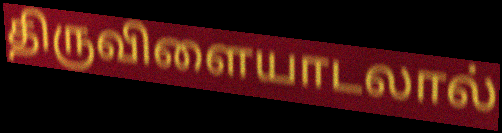
திருவிளையாடலால்